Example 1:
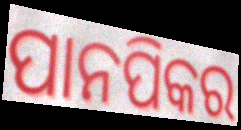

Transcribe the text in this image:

ପାନପିକର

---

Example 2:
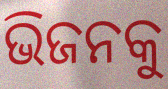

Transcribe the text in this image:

ଭିଜନକୁ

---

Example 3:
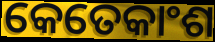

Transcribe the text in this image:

କେତେକାଂଶ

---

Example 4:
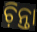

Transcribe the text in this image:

ଚ଼ିନ୍ତା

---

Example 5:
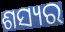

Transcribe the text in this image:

ଶସ୍ଯର